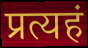
प्रत्यहं